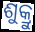
ଶୁକ୍ରୁ